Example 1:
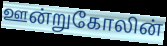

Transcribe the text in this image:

ஊன்றுகோலின்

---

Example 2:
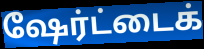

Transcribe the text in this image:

ஷேர்ட்டைக்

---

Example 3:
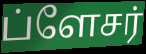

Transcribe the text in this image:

ப்ளேசர்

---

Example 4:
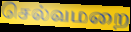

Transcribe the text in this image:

செல்வமறை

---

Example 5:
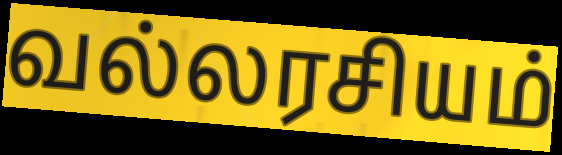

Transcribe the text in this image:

வல்லரசியம்